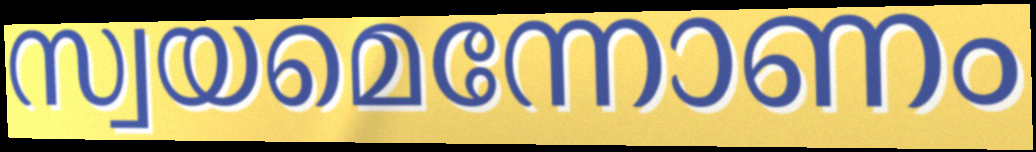
സ്വയമെന്നോണം